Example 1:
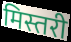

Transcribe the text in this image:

मिस्तरी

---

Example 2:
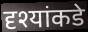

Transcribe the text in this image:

दृश्यांकडे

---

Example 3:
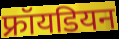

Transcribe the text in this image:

फ्रॉयडियन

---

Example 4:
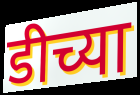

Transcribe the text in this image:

डीच्या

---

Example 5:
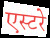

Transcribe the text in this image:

एस्टरे